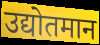
उद्योतमान